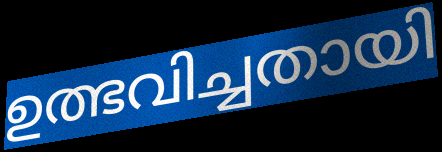
ഉത്ഭവിച്ചതായി